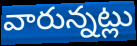
వారున్నట్లు